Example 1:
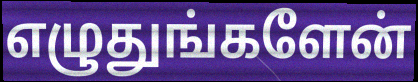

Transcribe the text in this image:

எழுதுங்களேன்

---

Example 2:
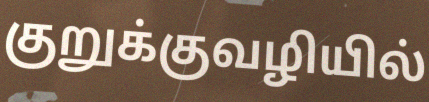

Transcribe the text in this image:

குறுக்குவழியில்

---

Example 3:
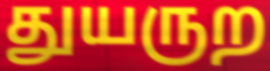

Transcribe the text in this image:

துயருற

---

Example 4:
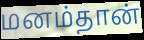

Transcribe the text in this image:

மனம்தான்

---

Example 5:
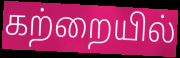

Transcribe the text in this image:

கற்றையில்